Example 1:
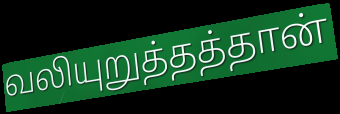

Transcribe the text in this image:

வலியுறுத்தத்தான்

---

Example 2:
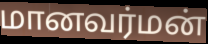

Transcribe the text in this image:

மானவர்மன்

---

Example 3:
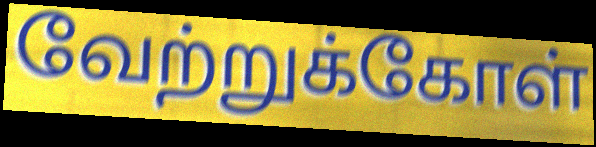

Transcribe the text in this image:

வேற்றுக்கோள்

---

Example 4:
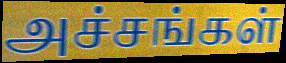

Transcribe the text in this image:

அச்சங்கள்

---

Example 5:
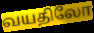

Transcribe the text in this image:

வயதிலோ